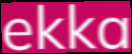
ekka